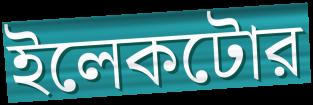
ইলেকটোর